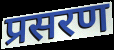
प्रसरण